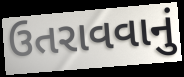
ઉતરાવવાનું